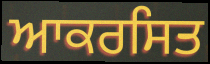
ਆਕਰਸਿਤ